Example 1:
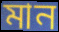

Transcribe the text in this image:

মান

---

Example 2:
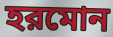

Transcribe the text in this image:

হরমোন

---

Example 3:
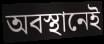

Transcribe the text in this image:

অবস্থানেই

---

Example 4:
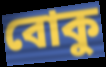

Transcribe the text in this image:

বোকু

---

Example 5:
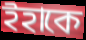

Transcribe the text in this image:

ইহাকে